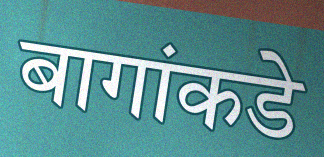
बागांकडे